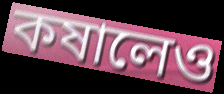
কষালেও